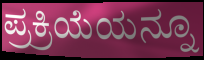
ಪ್ರಕ್ರಿಯೆಯನ್ನೂ